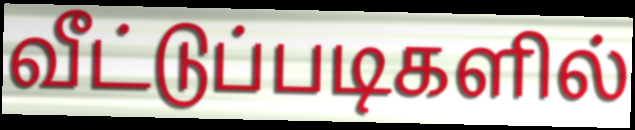
வீட்டுப்படிகளில்